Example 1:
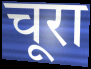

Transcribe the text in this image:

चूरा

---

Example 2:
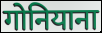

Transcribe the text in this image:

गोनियाना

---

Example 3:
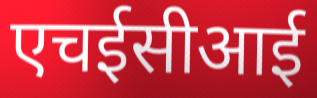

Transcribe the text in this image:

एचईसीआई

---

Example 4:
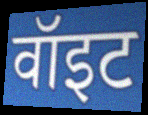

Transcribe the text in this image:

वॉइट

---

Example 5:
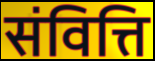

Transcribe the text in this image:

संवित्ति